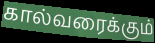
கால்வரைக்கும்